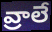
వ్రాలే